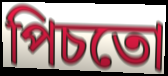
পিচতো